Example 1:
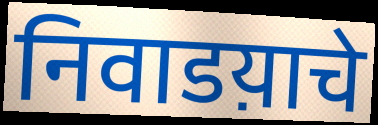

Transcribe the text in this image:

निवाडय़ाचे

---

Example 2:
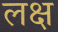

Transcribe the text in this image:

लक्ष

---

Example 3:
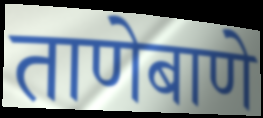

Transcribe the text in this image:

ताणेबाणे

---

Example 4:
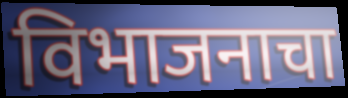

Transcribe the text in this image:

विभाजनाचा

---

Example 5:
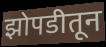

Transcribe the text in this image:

झोपडीतून